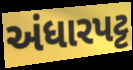
અંધારપટ્ટ